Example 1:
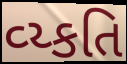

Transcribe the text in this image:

વ્ય્કતિ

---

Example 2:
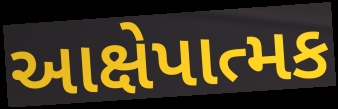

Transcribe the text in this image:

આક્ષેપાત્મક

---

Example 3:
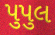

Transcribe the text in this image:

પુપુલ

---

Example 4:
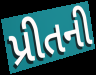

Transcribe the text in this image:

પ્રીતની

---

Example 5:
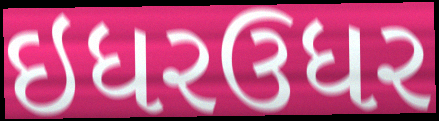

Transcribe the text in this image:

ઇધરઉધર